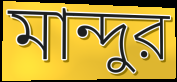
মান্দুর